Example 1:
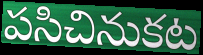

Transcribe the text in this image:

పసిచినుకట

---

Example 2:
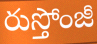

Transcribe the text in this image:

రుస్తోంజీ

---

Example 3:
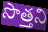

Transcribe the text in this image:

సొత్తని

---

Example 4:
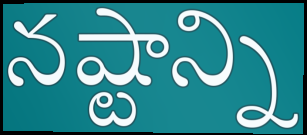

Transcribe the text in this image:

నష్టాన్ని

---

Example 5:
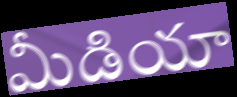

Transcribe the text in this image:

మీడియా